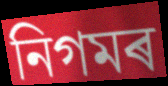
নিগমৰ